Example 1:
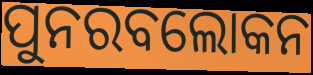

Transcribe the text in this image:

ପୁନରବଲୋକନ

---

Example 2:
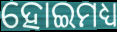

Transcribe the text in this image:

ହୋଇମଧ୍ୟ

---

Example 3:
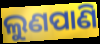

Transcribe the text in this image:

ଲୁଣପାଣି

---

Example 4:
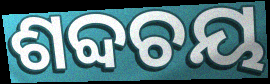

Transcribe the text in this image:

ଶବ୍ଦଚୟ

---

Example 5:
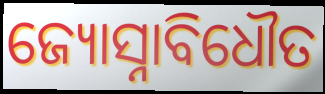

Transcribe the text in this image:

ଜ୍ୟୋସ୍ନାବିଧୌତ